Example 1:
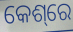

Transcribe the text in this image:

କେଶ୍‌ରେ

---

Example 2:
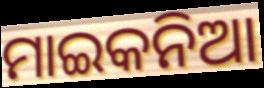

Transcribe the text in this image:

ମାଇକନିଆ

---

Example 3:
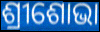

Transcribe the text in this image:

ଶ୍ରୀଶୋଭା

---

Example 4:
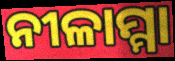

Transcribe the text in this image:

ନୀଳାମ୍ମା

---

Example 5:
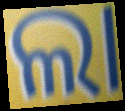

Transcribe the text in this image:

ଲା